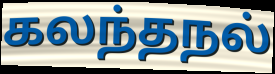
கலந்தநல்